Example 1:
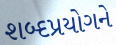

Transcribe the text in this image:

શબ્દપ્રયોગને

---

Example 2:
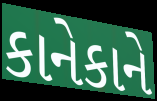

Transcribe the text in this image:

કાનેકાને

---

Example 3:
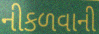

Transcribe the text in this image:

નીકળવાની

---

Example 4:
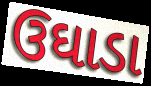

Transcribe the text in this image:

ઉઘાડા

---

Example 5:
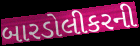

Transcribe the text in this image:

બારડોલીકરની